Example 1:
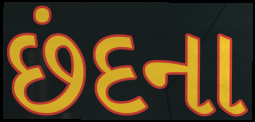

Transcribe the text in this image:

છંદના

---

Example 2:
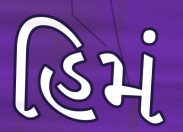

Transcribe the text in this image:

હિમં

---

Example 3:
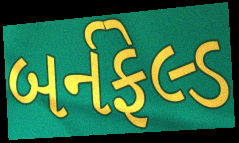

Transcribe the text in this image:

બર્નફેલ્ડ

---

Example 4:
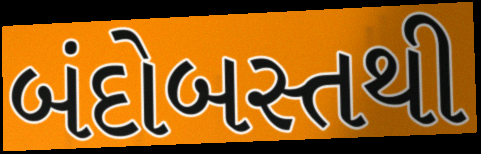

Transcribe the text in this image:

બંદોબસ્તથી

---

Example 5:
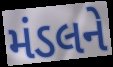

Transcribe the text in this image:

મંડલને